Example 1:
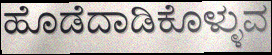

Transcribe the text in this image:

ಹೊಡೆದಾಡಿಕೊಳ್ಳುವ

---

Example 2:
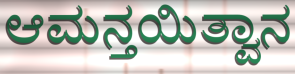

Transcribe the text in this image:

ಆಮನ್ತಯಿತ್ವಾನ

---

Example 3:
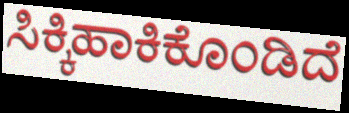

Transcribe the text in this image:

ಸಿಕ್ಕಿಹಾಕಿಕೊಂಡಿದೆ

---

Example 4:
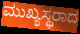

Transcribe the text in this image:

ಮುಖ್ಯಸ್ಥರಾದ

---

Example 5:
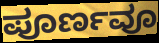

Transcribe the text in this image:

ಪೂರ್ಣವೂ